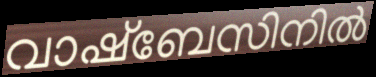
വാഷ്ബേസിനിൽ